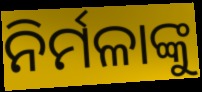
ନିର୍ମଳାଙ୍କୁ